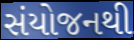
સંયોજનથી